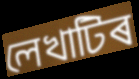
লেখাটিৰ